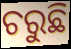
ଚରୁଛି